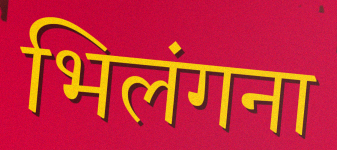
भिलंगना